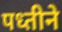
पध्तीने